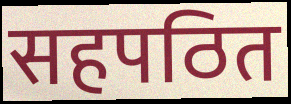
सहपठित